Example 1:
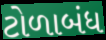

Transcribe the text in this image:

ટોળાબંધ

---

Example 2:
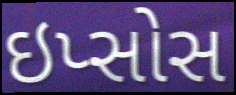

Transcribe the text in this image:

ઇપ્સોસ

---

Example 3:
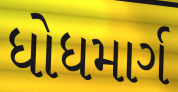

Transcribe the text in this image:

ધોધમાર્ગ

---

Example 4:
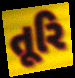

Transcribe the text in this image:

તૂરિ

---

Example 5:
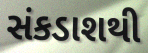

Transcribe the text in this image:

સંકડાશથી